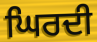
ਘਿਰਦੀ